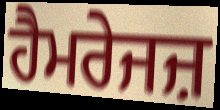
ਹੈਮਰੇਜਜ਼